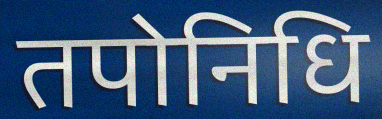
तपोनिधि